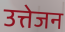
उत्तेजन